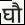
घौ